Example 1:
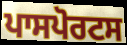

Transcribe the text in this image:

ਪਾਸਪੋਰਟਸ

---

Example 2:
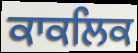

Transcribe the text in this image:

ਕਾਕਲਿਕ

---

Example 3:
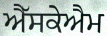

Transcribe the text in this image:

ਐੱਸਕੇਐਮ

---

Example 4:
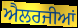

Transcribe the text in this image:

ਐਲਰਜੀਆਂ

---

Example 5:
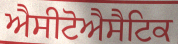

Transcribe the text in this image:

ਐਸੀਟੋਐਸੈਟਿਕ